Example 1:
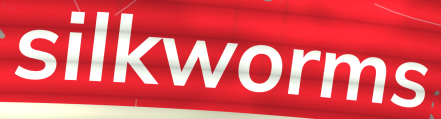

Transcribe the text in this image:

silkworms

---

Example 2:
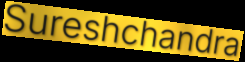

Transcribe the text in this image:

Sureshchandra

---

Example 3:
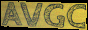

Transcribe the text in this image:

AVGC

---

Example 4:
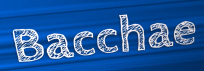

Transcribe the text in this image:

Bacchae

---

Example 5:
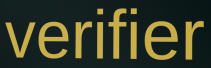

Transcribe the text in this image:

verifier